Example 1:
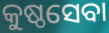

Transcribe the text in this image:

କୁଷ୍ଠସେବା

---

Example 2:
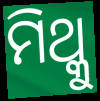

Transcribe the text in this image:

ମିଥ୍କୁ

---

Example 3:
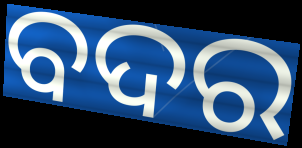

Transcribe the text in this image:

ବଦର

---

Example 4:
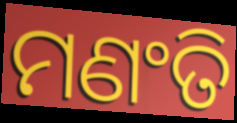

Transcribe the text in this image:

ମଣଂତି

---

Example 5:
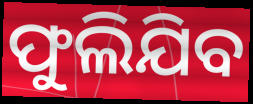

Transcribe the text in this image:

ଫୁଲିଯିବ